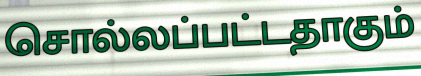
சொல்லப்பட்டதாகும்